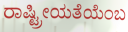
ರಾಷ್ಟ್ರೀಯತೆಯೆಂಬ